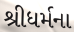
શ્રીધર્મના